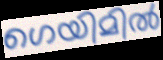
ഗെയിമിൽ